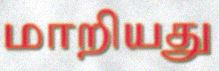
மாறியது